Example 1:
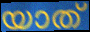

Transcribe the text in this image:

യാത്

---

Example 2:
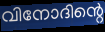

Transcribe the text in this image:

വിനോദിന്റെ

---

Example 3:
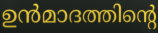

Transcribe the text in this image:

ഉൻമാദത്തിന്റെ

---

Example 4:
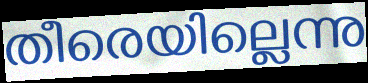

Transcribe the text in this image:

തീരെയില്ലെന്നു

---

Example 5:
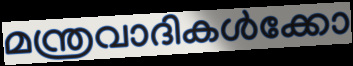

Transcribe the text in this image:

മന്ത്രവാദികൾക്കോ